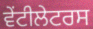
ਵੇਂਟੀਲੇਟਰਸ